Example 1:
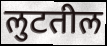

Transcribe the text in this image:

लुटतील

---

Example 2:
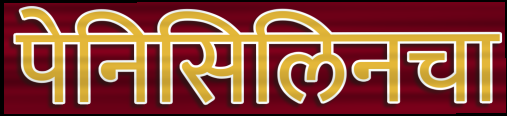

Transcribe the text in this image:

पेनिसिलिनचा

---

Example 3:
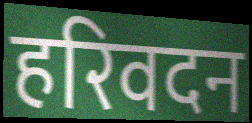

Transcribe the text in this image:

हरिवदन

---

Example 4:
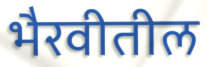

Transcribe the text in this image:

भैरवीतील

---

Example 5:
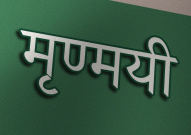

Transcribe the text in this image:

मृण्मयी